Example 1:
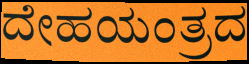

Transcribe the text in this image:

ದೇಹಯಂತ್ರದ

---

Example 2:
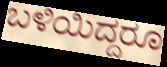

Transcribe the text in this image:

ಬಳಿಯಿದ್ದರೂ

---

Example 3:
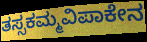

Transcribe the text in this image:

ತಸ್ಸಕಮ್ಮವಿಪಾಕೇನ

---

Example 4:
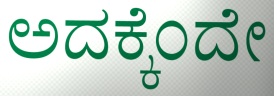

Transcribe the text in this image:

ಅದಕ್ಕೆಂದೇ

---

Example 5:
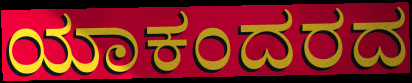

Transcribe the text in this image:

ಯಾಕಂದರದ